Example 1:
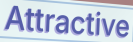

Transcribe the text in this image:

Attractive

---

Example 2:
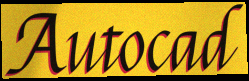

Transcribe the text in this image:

Autocad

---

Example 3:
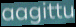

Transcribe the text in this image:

aagittu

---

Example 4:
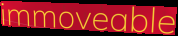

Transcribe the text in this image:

immoveable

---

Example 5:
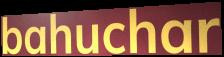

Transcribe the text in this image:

bahuchar